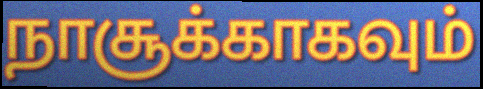
நாசூக்காகவும்